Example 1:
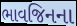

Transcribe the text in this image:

ભાવજિનના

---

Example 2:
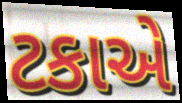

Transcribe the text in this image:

ટકાએ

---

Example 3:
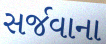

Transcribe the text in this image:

સર્જવાના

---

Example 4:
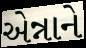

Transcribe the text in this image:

એન્નાને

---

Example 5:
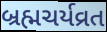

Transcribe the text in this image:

બ્રહ્મચર્યવ્રત